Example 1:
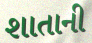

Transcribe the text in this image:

શાતાની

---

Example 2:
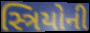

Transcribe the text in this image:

સ્ત્રિયોની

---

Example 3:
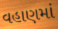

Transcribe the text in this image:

વહાણમાં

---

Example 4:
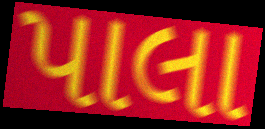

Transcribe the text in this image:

પાલા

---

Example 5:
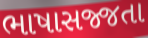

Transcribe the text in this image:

ભાષાસજ્જતા